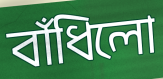
বাঁধিলো